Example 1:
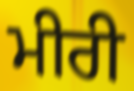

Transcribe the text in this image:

ਮੀਰੀ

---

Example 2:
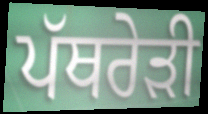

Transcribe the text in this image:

ਪੱਥਰੇੜੀ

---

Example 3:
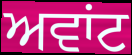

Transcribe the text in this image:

ਅਵਾਂਟ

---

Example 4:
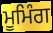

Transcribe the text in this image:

ਮੂਮਿੰਗ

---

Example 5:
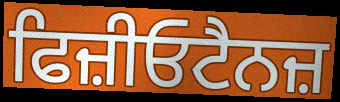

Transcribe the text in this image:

ਫਿਜ਼ੀਓਟੈਨਜ਼